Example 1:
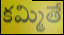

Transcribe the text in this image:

కమ్మితే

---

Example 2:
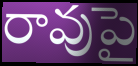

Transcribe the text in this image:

రావుపై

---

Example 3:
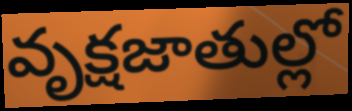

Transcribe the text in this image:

వృక్షజాతుల్లో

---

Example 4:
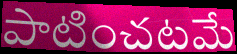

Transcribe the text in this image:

పాటించటమే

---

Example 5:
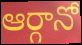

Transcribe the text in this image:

ఆర్గానో